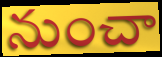
నుంచా